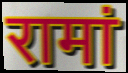
रामां